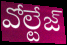
వోల్టేజ్